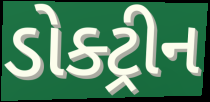
ડોક્ટ્રીન